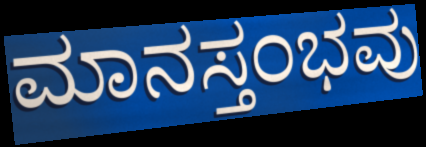
ಮಾನಸ್ತಂಭವು